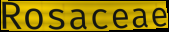
Rosaceae